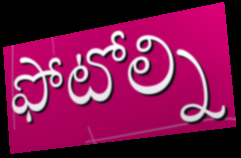
ఫోటోల్ని